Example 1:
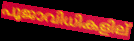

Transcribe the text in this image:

പൂജാവിധികളില്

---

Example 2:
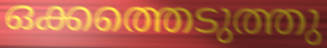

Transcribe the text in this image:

ഒക്കത്തെടുത്തു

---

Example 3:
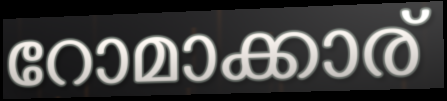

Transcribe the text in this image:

റോമാക്കാര്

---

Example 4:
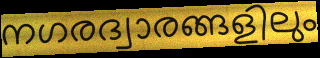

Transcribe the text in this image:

നഗരദ്വാരങ്ങളിലും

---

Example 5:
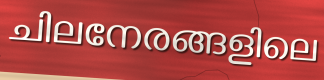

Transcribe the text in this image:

ചിലനേരങ്ങളിലെ